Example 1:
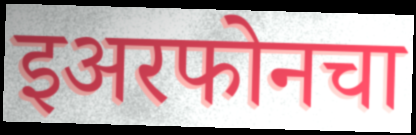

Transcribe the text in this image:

इअरफोनचा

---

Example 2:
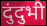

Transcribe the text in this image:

दुंदुभी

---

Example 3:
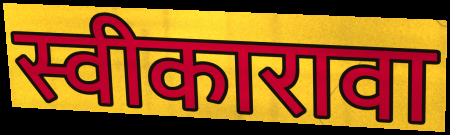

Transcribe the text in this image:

स्वीकारावा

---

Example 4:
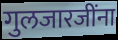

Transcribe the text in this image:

गुलजारजींना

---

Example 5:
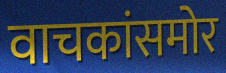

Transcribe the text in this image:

वाचकांसमोर